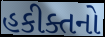
હકીક્તનો